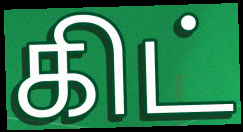
கிட்